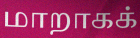
மாறாகக்